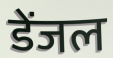
डेंजल